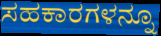
ಸಹಕಾರಗಳನ್ನೂ